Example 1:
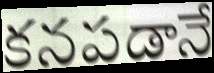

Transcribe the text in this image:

కనపడానే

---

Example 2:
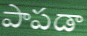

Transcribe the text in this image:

పాపడా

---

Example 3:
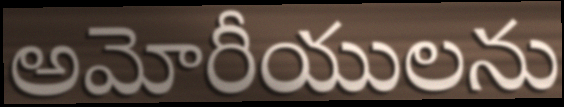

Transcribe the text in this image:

అమోరీయులను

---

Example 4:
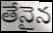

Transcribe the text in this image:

తేనైన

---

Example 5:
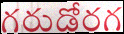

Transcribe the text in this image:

గరుడోరగ